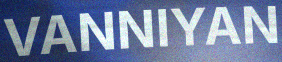
VANNIYAN